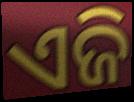
ଏଜି